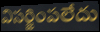
విసర్జింపలేదు